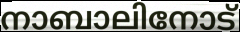
നാബാലിനോട്